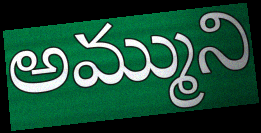
అమ్ముని